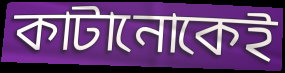
কাটানোকেই